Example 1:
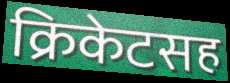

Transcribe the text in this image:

क्रिकेटसह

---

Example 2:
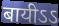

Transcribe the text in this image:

बायीऽऽ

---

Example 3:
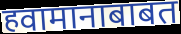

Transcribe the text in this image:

हवामानाबाबत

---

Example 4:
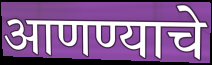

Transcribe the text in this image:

आणण्याचे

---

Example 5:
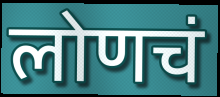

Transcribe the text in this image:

लोणचं